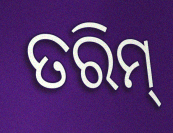
ତରିମ୍